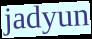
jadyun